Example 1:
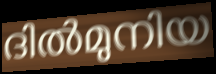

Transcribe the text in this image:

ദിൽമുനിയ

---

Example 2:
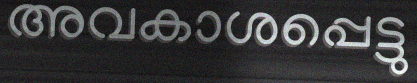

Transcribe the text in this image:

അവകാശപ്പെട്ടു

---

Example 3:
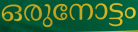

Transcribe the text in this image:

ഒരുനോട്ടം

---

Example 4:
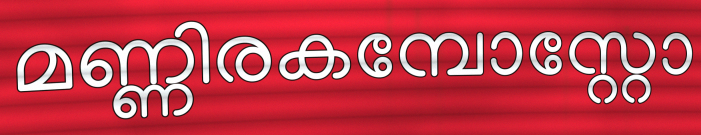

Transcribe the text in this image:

മണ്ണിരകമ്പോസ്റ്റോ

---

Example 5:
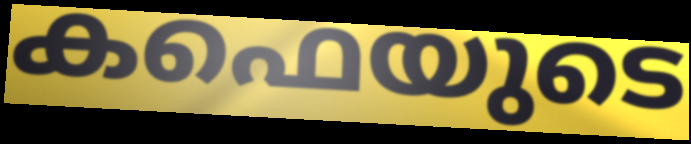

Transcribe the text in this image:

കഫെയുടെ